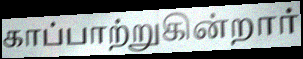
காப்பாற்றுகின்றார்